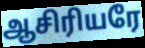
ஆசிரியரே